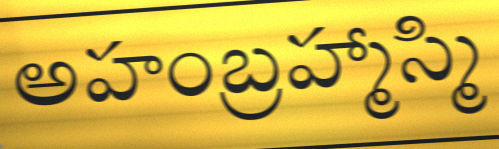
అహంబ్రహ్మాస్మి